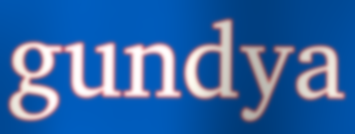
gundya